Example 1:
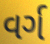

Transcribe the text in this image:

વર્ગ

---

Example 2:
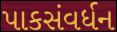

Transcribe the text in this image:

પાકસંવર્ધન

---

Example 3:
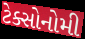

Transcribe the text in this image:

ટેક્સોનોમી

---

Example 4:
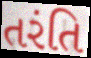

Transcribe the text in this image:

તરંતિ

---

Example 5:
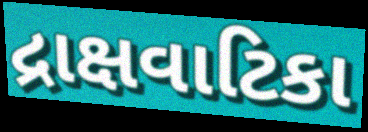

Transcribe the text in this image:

દ્રાક્ષવાટિકા